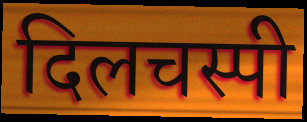
दिलचस्पी